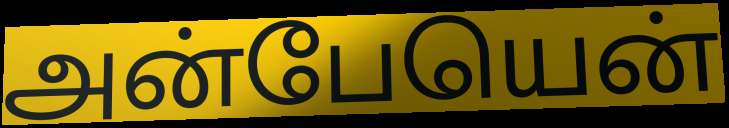
அன்பேயென்